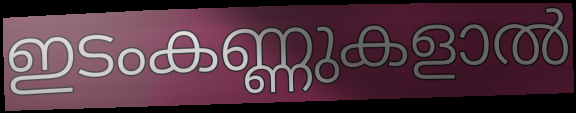
ഇടംകണ്ണുകളാൽ